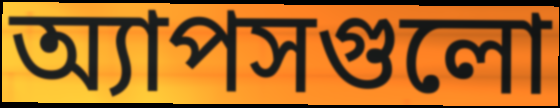
অ্যাপসগুলো